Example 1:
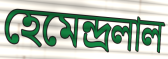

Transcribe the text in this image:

হেমেন্দ্রলাল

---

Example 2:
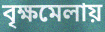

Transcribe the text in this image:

বৃক্ষমেলায়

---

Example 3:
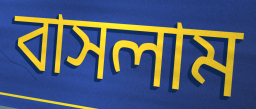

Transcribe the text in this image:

বাসলাম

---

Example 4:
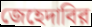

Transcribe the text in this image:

জেহেদাবির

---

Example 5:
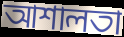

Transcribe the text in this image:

আশালতা